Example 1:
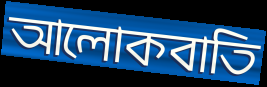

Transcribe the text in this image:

আলোকবাতি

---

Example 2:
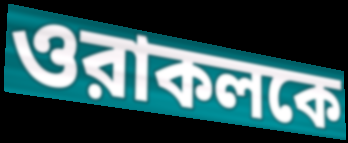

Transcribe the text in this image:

ওরাকলকে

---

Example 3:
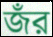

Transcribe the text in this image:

জঁর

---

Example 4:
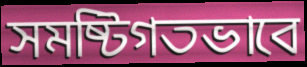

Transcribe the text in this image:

সমষ্টিগতভাবে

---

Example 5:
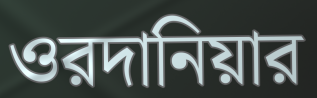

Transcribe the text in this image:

ওরদানিয়ার